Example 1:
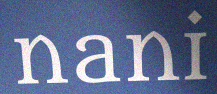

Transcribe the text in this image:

nani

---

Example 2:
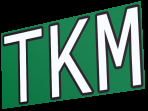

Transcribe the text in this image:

TKM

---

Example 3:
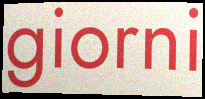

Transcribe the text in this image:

giorni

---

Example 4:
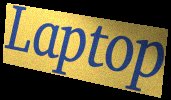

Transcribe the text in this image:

Laptop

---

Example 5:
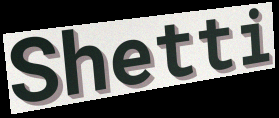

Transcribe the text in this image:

Shetti